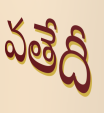
వతేదీ